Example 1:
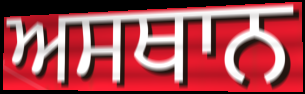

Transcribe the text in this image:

ਅਸਥਾਨ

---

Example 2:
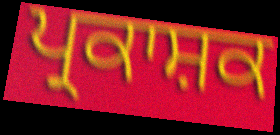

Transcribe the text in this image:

ਪ੍ਰਕਾਸ਼ਕ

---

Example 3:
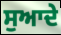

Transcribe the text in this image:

ਸੁਆਦੇ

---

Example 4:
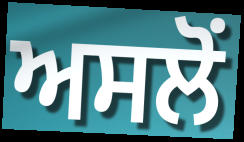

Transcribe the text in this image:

ਅਸਲੋਂ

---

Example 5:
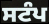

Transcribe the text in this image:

ਸਟੰਪ